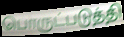
பொருட்படுத்தி